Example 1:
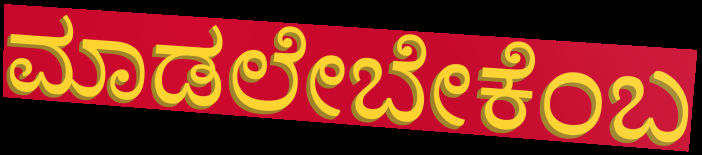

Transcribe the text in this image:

ಮಾಡಲೇಬೇಕೆಂಬ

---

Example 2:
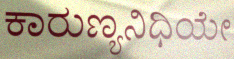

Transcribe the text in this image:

ಕಾರುಣ್ಯನಿಧಿಯೇ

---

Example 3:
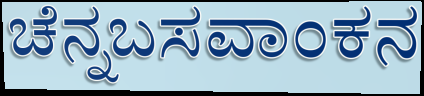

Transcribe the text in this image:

ಚೆನ್ನಬಸವಾಂಕನ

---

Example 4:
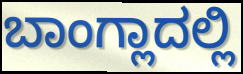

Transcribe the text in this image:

ಬಾಂಗ್ಲಾದಲ್ಲಿ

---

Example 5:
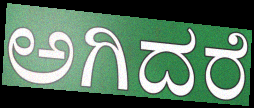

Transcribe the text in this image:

ಅಗಿದರೆ